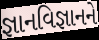
જ્ઞાનવિજ્ઞાનને